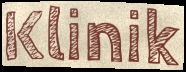
Klinik